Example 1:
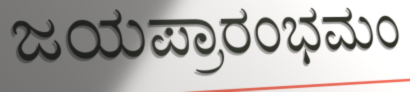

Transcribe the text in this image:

ಜಯಪ್ರಾರಂಭಮಂ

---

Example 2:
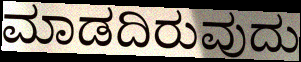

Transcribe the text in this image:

ಮಾಡದಿರುವುದು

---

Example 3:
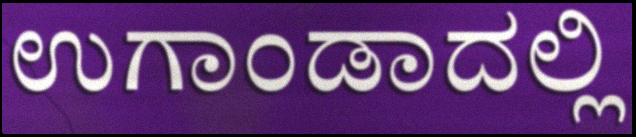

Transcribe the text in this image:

ಉಗಾಂಡಾದಲ್ಲಿ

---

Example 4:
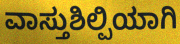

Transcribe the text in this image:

ವಾಸ್ತುಶಿಲ್ಪಿಯಾಗಿ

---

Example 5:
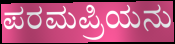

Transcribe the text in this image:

ಪರಮಪ್ರಿಯನು